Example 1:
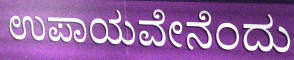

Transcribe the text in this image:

ಉಪಾಯವೇನೆಂದು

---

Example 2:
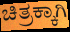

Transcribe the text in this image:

ಚಿತ್ರಕ್ಕಾಗಿ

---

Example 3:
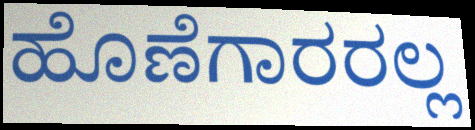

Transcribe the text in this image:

ಹೊಣೆಗಾರರಲ್ಲ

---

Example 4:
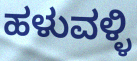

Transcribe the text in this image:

ಹಳುವಳ್ಳಿ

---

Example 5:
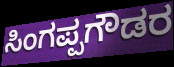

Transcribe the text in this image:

ಸಿಂಗಪ್ಪಗೌಡರ